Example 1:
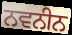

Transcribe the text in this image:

ਨਵਨੀਨ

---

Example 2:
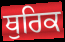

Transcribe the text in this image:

ਥੁਰਿਕ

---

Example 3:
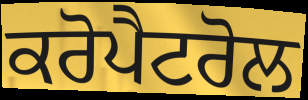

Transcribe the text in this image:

ਕਰੋਪੈਟਰੋਲ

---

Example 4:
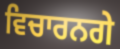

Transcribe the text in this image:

ਵਿਚਾਰਨਗੇ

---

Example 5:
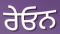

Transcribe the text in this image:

ਰੇਓਨ